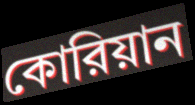
কোরিয়ান